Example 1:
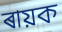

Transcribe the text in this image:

ৰায়ক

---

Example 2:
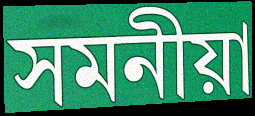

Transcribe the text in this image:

সমনীয়া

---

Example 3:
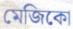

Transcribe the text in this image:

মেজিকো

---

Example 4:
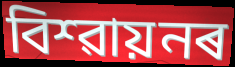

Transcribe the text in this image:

বিশ্ৱায়নৰ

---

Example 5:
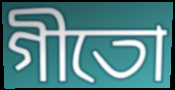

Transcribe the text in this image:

গীতো